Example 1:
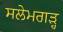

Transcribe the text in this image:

ਸਲੇਮਗੜ੍ਹ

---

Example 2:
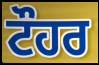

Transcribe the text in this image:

ਟੌਹਰ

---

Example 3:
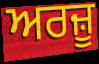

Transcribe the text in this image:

ਅਰਜ਼ੂ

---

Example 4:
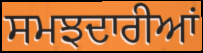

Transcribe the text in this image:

ਸਮਝਦਾਰੀਆਂ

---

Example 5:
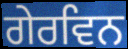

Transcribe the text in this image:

ਗੇਰਵਿਨ